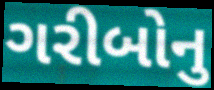
ગરીબોનુ